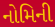
નોમિની